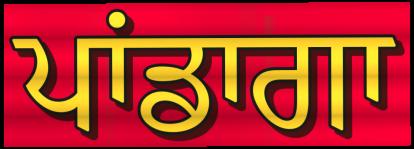
ਪਾਂਡਾਗਾ